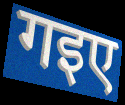
गइए